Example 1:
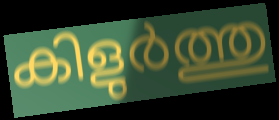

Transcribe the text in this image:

കിളുർത്തു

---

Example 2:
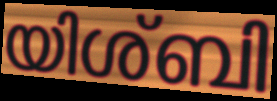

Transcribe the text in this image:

യിശ്ബി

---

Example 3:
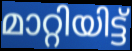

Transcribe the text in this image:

മാറ്റിയിട്ട്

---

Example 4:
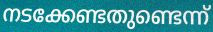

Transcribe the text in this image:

നടക്കേണ്ടതുണ്ടെന്ന്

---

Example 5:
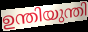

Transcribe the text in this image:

ഉന്തിയുന്തി